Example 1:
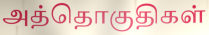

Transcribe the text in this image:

அத்தொகுதிகள்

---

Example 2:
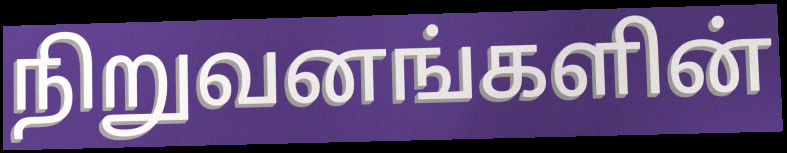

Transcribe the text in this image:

நிறுவனங்களின்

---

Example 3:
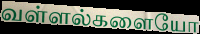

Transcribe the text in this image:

வள்ளல்களையோ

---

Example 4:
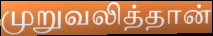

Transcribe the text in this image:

முறுவலித்தான்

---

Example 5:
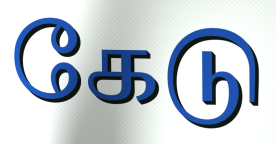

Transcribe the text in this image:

கேடு